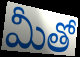
మీతో